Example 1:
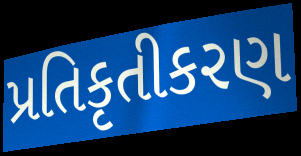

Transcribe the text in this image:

પ્રતિકૃતીકરણ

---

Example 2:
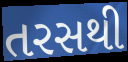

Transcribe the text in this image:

તરસથી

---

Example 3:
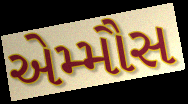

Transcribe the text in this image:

એમ્મૌસ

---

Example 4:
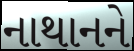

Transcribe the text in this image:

નાથાનને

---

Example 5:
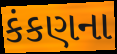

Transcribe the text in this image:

કંકણના